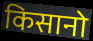
किसानो